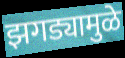
झगड्यामुळे